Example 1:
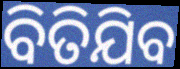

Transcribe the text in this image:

ବିତିଯିବ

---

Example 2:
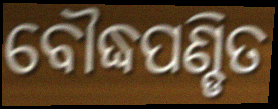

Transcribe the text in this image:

ବୌଦ୍ଧପଣ୍ଡିତ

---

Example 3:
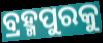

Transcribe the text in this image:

ବ୍ରହ୍ମପୁରକୁ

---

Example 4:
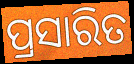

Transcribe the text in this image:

ପ୍ରସାରିତ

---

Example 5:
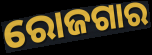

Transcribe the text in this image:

ରୋଜଗାର